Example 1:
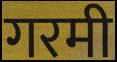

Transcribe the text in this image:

गरमी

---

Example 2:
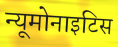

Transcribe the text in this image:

न्यूमोनाइटिस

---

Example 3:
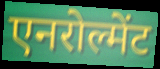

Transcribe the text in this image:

एनरोल्मेंट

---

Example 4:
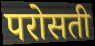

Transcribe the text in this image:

परोसती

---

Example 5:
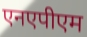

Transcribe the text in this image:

एनएपीएम